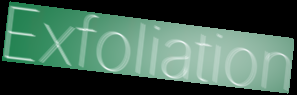
Exfoliation